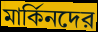
মার্কিনদের